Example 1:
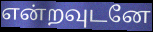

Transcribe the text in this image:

என்றவுடனே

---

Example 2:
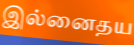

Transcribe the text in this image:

இல்னைதய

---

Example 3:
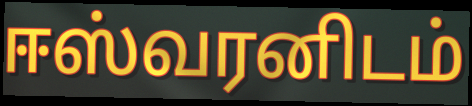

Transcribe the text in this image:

ஈஸ்வரனிடம்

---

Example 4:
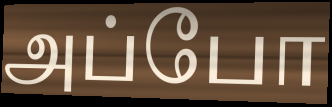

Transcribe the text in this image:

அப்போ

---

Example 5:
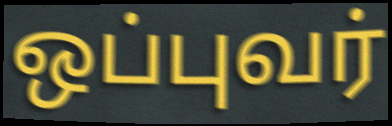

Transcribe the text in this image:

ஒப்புவர்